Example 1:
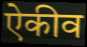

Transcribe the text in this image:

ऐकीव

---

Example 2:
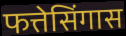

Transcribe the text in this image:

फत्तेसिंगास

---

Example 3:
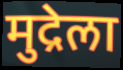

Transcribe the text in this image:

मुद्रेला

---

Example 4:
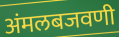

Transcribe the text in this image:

अंमलबजवणी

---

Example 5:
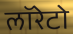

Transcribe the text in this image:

लॉरेटो